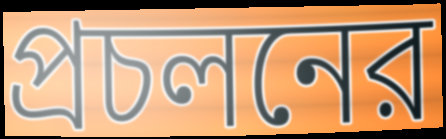
প্রচলনের